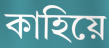
কাহিয়ে